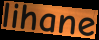
lihane